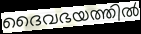
ദൈവഭയത്തിൽ